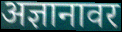
अज्ञानावर